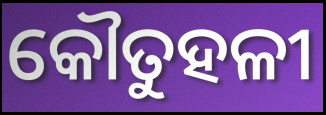
କୌତୁହଳୀ